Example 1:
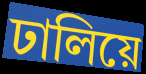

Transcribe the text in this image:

ঢালিয়ে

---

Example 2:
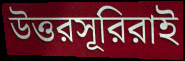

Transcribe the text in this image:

উত্তরসূরিরাই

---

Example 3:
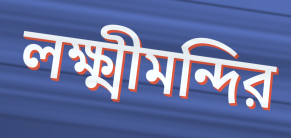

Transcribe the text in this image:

লক্ষ্মীমন্দির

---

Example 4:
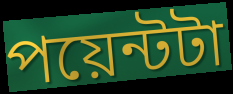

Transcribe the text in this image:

পয়েন্টটা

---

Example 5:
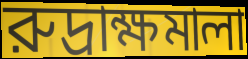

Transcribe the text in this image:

রুদ্রাক্ষমালা